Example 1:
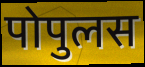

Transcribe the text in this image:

पोपुलस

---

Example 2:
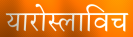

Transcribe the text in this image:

यारोस्लाविच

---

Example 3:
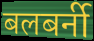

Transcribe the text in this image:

बलबर्नी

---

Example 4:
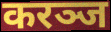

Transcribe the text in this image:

करञ्ज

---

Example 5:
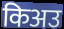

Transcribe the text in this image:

किअउ